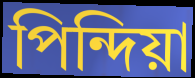
পিন্দিয়া